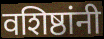
वशिष्ठांनी